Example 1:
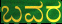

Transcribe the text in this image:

ಬವರ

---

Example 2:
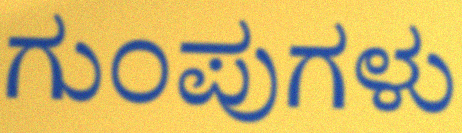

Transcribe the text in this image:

ಗುಂಪುಗಳು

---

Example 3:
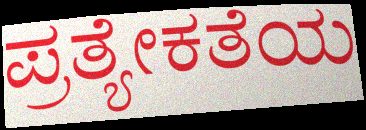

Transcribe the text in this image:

ಪ್ರತ್ಯೇಕತೆಯ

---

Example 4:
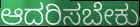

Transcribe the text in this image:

ಆದರಿಸಬೇಕು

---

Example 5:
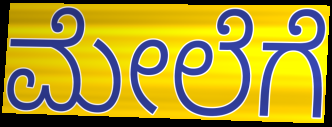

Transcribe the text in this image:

ಮೇಲೆಗೆ